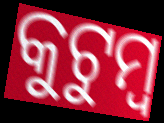
କୁଟୁମ୍ୱ